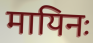
मायिनः